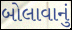
બોલાવાનું